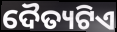
ଦୈତ୍ୟଟିଏ